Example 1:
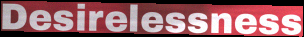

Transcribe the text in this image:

Desirelessness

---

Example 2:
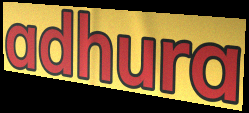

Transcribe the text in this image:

adhura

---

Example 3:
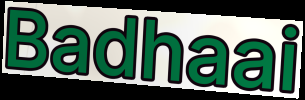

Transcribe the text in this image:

Badhaai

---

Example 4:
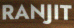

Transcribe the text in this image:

RANJIT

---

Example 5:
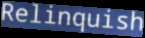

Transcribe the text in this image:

Relinquish